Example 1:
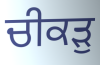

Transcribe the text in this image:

ਚੀਕੜੁ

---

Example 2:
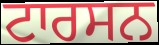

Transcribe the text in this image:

ਟਾਰਸਨ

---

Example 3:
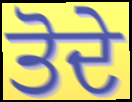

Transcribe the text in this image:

ਤੋਦੇ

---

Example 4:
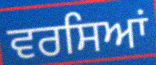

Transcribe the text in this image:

ਵਰਸਿਆਂ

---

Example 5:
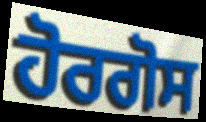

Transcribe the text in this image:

ਹੋਰਗੋਸ